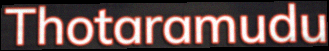
Thotaramudu